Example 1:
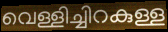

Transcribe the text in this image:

വെള്ളിച്ചിറകുള്ള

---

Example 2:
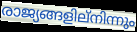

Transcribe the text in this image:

രാജ്യങ്ങളില്നിന്നും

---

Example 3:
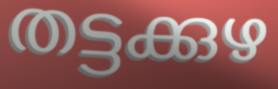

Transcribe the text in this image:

തട്ടക്കുഴ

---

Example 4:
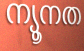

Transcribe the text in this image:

ന്യൂനത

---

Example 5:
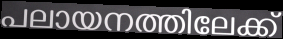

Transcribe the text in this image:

പലായനത്തിലേക്ക്